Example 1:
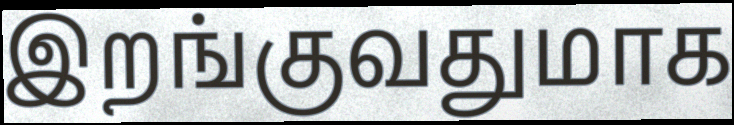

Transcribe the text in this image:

இறங்குவதுமாக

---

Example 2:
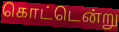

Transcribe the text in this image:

கொட்டென்று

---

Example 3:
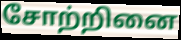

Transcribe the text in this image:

சோற்றினை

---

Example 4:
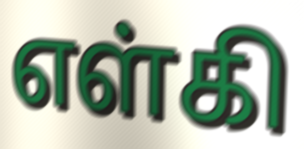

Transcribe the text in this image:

எள்கி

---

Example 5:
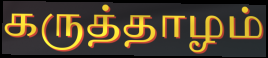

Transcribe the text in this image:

கருத்தாழம்